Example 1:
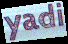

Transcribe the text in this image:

yadi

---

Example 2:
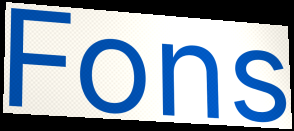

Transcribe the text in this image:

Fons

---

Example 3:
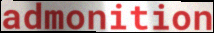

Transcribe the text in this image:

admonition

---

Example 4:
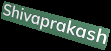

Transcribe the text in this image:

Shivaprakash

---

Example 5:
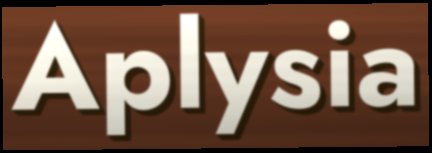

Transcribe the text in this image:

Aplysia